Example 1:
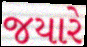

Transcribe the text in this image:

જયારે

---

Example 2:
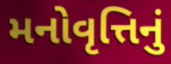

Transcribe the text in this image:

મનોવૃત્તિનું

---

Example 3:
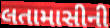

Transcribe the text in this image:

લતામાસીની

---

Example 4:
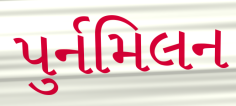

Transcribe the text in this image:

પુર્નમિલન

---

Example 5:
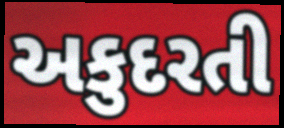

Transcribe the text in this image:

અકુદરતી